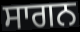
ਸਾਗਨ